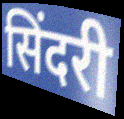
सिंदरी